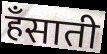
हँसाती